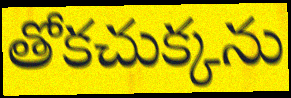
తోకచుక్కను